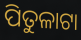
ପିତୁଳାଟା